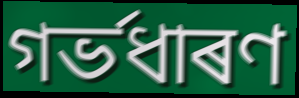
গৰ্ভধাৰণ